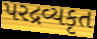
પરદ્રવ્યકૃત